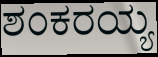
ಶಂಕರಯ್ಯ